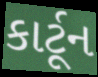
કાર્ટૂન